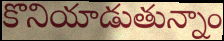
కొనియాడుతున్నాం